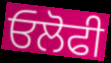
ਓਲੋਫੀ